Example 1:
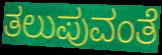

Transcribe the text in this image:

ತಲುಪುವಂತೆ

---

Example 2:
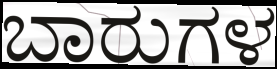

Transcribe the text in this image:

ಬಾರುಗಳ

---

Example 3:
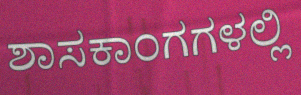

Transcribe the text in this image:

ಶಾಸಕಾಂಗಗಳಲ್ಲಿ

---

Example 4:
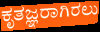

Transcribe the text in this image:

ಕೃತಜ್ಞರಾಗಿರಲು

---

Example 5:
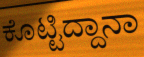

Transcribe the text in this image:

ಕೊಟ್ಟಿದ್ದಾನಾ